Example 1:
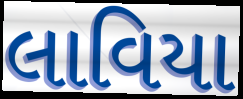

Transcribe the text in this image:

લાવિયા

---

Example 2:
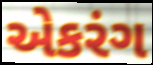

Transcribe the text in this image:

એકરંગ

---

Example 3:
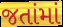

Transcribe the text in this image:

જતાંમાં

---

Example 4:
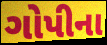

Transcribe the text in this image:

ગોપીના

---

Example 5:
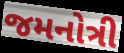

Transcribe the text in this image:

જમનોત્રી